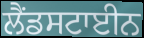
ਲੈਂਡਸਟਾਈਨ